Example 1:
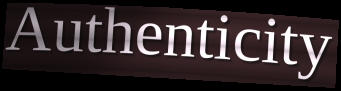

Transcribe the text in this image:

Authenticity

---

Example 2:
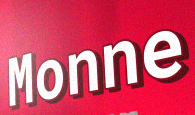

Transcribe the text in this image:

Monne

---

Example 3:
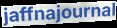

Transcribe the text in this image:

jaffnajournal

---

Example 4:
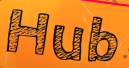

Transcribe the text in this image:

Hub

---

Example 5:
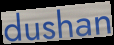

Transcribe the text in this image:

dushan